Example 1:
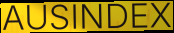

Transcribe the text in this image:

AUSINDEX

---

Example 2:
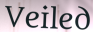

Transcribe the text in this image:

Veiled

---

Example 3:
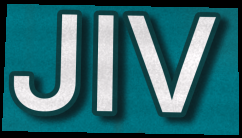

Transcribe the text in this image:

JIV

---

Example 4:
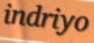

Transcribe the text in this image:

indriyo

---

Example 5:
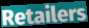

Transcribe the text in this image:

Retailers